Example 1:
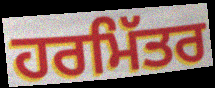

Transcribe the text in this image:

ਹਰਮਿੱਤਰ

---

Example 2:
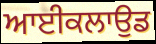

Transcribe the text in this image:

ਆਈਕਲਾਉਡ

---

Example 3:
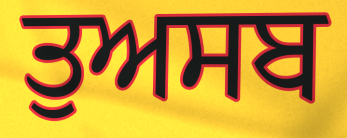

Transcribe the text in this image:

ਤੁਅਸਬ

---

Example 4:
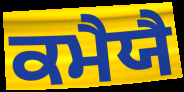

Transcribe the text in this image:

ਕਮੈਯੈ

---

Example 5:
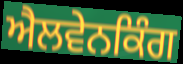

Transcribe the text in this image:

ਐਲਵੇਨਕਿੰਗ